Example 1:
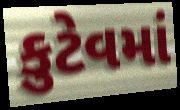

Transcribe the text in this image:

કુટેવમાં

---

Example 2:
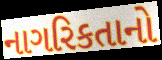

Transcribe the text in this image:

નાગરિકતાનો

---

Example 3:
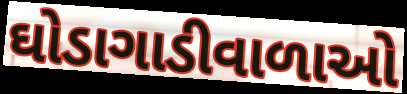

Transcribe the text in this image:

ઘોડાગાડીવાળાઓ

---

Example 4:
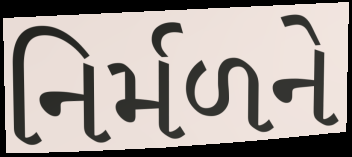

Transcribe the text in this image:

નિર્મળને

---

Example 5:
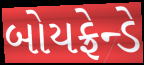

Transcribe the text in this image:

બોયફ્રેન્ડે